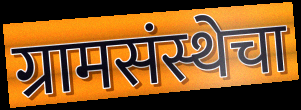
ग्रामसंस्थेचा